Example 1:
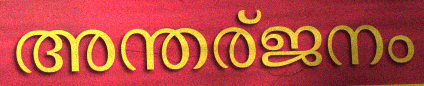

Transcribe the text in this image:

അന്തര്ജനം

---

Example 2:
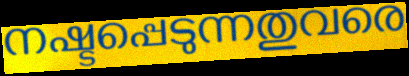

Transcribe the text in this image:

നഷ്ടപ്പെടുന്നതുവരെ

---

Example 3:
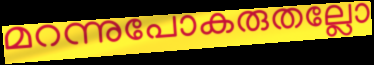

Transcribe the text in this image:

മറന്നുപോകരുതല്ലോ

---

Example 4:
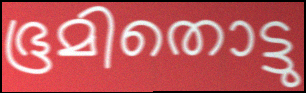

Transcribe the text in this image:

ഭൂമിതൊട്ടു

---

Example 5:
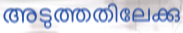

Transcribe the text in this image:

അടുത്തതിലേക്കു